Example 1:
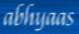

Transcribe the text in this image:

abhyaas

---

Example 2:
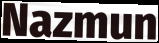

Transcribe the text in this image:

Nazmun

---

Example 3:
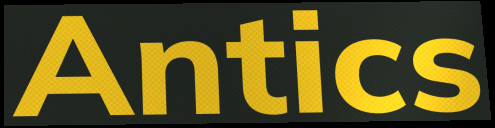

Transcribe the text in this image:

Antics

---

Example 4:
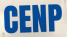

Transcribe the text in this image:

CENP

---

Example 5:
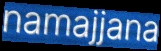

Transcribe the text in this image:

namajjana